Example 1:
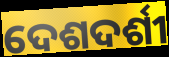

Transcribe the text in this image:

ଦେଶଦର୍ଶୀ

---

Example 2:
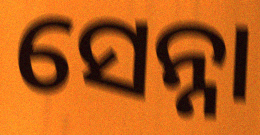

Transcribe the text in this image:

ସେନ୍ନା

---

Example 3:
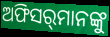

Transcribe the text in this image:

ଅଫିସର୍‌ମାନଙ୍କୁ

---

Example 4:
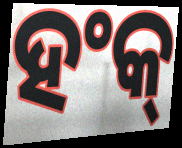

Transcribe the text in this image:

ହଂକ୍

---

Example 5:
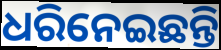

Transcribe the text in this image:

ଧରିନେଇଛନ୍ତି